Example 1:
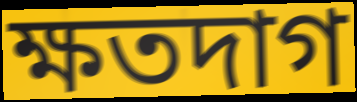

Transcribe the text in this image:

ক্ষতদাগ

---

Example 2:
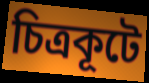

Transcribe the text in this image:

চিত্রকূটে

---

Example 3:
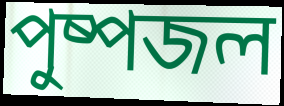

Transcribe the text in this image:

পুষ্পজল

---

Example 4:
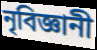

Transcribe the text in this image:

নৃবিজ্ঞানী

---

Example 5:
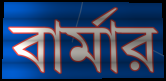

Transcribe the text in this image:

বার্মার